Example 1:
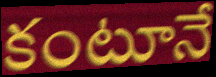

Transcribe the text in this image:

కంటూనే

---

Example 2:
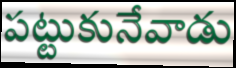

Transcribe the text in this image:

పట్టుకునేవాడు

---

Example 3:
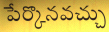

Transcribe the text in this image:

పేర్కొనవచ్చు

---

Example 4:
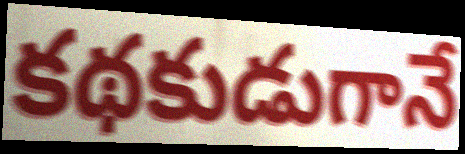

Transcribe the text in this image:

కథకుడుగానే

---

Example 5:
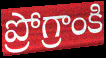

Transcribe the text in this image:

ప్రోగ్రాంకి